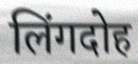
लिंगदोह